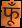
फूँ